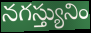
నగస్త్యునిం